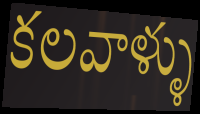
కలవాళ్ళు